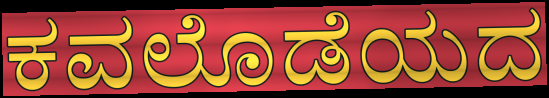
ಕವಲೊಡೆಯದ